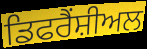
ਡਿਫਰੈਂਸ਼ੀਅਲ